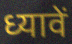
ध्यावें